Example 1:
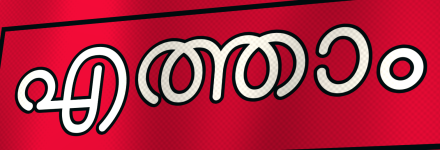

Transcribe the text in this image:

എത്താം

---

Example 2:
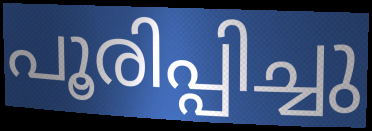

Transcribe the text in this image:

പൂരിപ്പിച്ചു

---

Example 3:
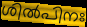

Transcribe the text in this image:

ശിൽപിനഃ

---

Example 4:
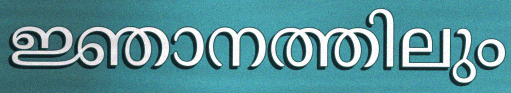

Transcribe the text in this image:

ജ്ഞാനത്തിലും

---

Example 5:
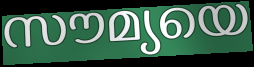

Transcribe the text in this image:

സൗമ്യയെ